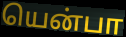
யென்பா